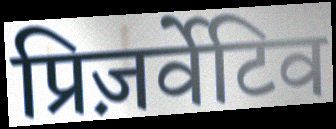
प्रिज़र्वेटिव